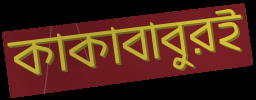
কাকাবাবুরই